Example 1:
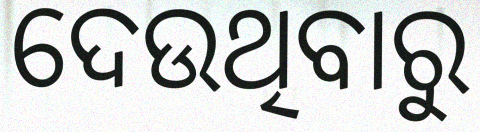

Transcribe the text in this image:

ଦେଉଥିବାରୁ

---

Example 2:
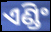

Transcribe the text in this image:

ଏଣ୍ଡିଂ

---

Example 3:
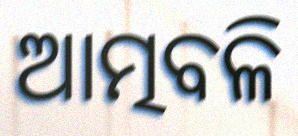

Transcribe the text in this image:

ଆତ୍ମବଳି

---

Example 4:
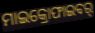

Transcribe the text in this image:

ମାଇକ୍ରୋଫାଇବର୍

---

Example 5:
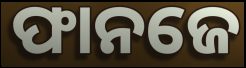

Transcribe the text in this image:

ଫାନଜେ